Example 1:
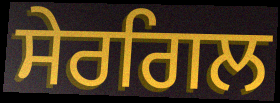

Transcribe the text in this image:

ਸੇਰਗਿਲ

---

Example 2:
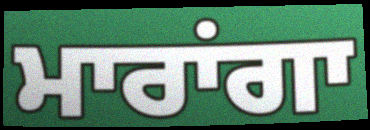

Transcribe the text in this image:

ਮਾਰਾਂਗਾ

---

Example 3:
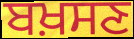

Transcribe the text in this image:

ਬਖ਼ਸਣ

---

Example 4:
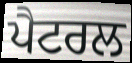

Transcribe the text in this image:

ਪੈਟਰਲ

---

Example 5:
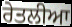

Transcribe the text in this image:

ਰੇਤਲੀਆ